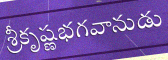
శ్రీకృష్ణభగవానుడు